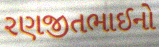
રણજીતભાઈનો